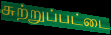
சுற்றுப்பட்டை